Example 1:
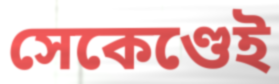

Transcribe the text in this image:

সেকেণ্ডেই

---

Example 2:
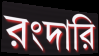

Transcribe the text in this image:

রংদারি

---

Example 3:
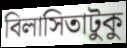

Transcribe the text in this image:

বিলাসিতাটুকু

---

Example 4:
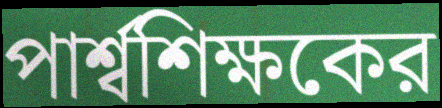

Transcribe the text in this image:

পার্শ্বশিক্ষকের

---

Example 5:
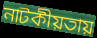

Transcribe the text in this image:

নাটকীয়তায়